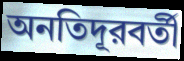
অনতিদূরবর্তী